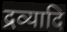
द्रव्यादि